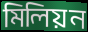
মিলিয়ন